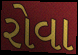
રોવા